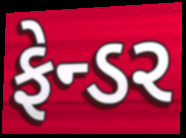
ફેન્ડર